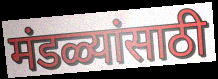
मंडळ्यांसाठी